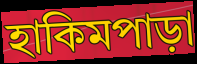
হাকিমপাড়া